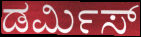
ಡರ್ಮಿಸ್